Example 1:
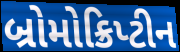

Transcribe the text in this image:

બ્રોમોક્રિપ્ટીન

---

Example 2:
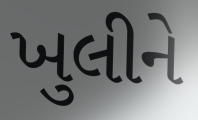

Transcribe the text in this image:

ખુલીને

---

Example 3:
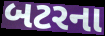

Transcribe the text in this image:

બટરના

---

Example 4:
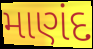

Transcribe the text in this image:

માણંદ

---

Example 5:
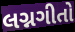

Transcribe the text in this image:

લગ્નગીતો